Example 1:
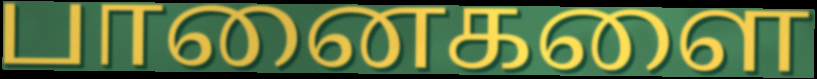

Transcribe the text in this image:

பானைகளை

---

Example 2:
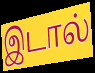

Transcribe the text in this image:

இடால்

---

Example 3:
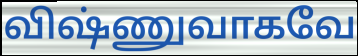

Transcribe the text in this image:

விஷ்ணுவாகவே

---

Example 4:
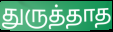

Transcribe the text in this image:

துருத்தாத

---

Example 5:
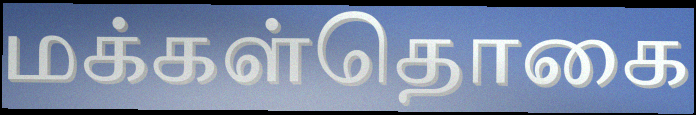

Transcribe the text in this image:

மக்கள்தொகை